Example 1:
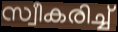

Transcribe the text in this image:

സ്വീകരിച്ച്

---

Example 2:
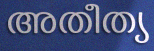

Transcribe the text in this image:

അതീത്യ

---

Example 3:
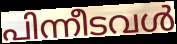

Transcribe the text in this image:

പിന്നീടവൾ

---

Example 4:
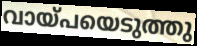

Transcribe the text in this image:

വായ്പയെടുത്തു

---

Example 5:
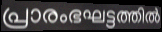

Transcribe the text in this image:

പ്രാരംഭഘട്ടത്തിൽ